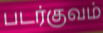
படர்குவம்